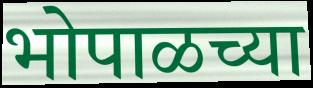
भोपाळच्या